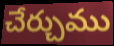
చేర్చుము